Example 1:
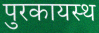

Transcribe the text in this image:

पुरकायस्थ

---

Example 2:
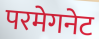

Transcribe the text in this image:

परमेगनेट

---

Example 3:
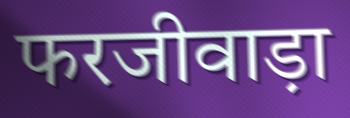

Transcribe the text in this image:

फरजीवाड़ा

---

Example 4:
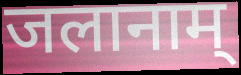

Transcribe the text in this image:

जलानाम्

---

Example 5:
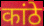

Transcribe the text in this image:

कांठे